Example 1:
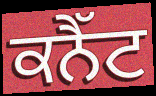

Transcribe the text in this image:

ਕਨੈੱਟ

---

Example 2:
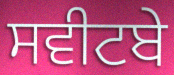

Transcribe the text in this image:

ਸਵੀਟਬੇ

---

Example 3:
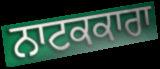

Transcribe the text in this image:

ਨਾਟਕਕਾਰਾ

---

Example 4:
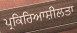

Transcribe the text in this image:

ਪ੍ਰਕਿਰਿਆਸ਼ੀਲਤਾ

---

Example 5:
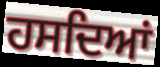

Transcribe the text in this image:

ਹਸਦਿਆਂ